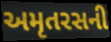
અમૃતરસની